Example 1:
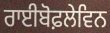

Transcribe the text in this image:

ਰਾਈਬੋਫ਼ਲੇਵਿਨ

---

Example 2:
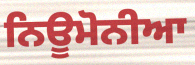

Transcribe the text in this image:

ਨਿਊਮੋਨੀਆ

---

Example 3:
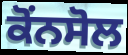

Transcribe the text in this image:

ਕੋਂਨਸੋਲ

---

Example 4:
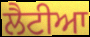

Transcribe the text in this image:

ਲੈਟੀਆ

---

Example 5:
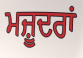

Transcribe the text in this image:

ਮਜ਼ੂਦਰਾਂ